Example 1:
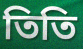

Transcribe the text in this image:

তিতি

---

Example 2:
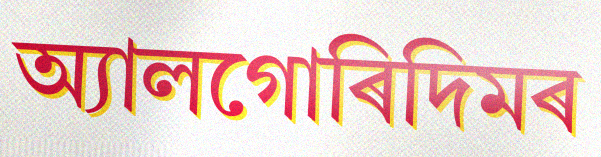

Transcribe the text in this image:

অ্যালগোৰিদিমৰ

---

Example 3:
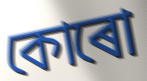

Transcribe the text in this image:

কোৰো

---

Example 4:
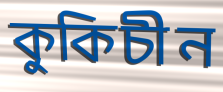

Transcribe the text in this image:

কুকিচীন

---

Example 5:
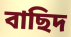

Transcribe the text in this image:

বাছিদ